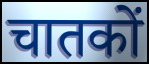
चातकों